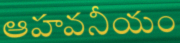
ఆహవనీయం